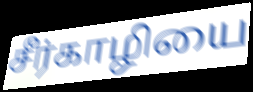
சீர்காழியை